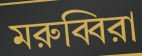
মরুব্বিরা